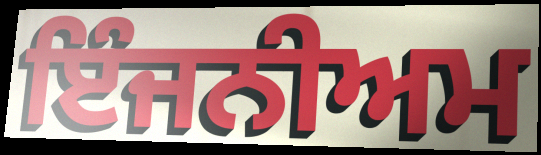
ਇੰਜਨੀਅਮ